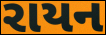
રાયન